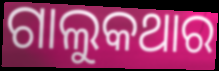
ଗାଲୁକଥାର